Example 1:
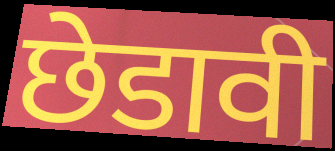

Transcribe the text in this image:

छेडावी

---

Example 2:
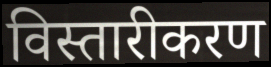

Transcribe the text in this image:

विस्तारीकरण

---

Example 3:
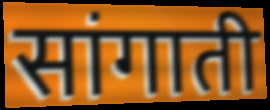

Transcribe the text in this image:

सांगाती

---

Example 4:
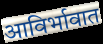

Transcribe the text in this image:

आविर्भावात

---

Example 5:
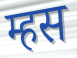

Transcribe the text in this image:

म्हस